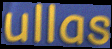
ullas